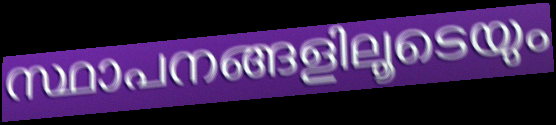
സ്ഥാപനങ്ങളിലൂടെയും